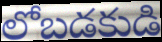
లోబడకుడి